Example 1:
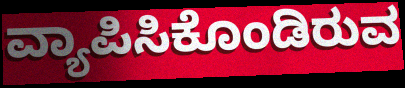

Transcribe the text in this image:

ವ್ಯಾಪಿಸಿಕೊಂಡಿರುವ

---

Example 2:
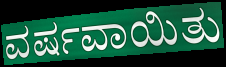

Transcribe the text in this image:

ವರ್ಷವಾಯಿತು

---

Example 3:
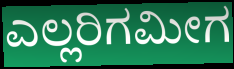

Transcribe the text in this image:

ಎಲ್ಲರಿಗಮೀಗ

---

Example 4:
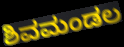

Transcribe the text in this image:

ಶಿವಮಂಡಲ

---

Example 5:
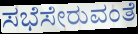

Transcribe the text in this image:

ಸಭೆಸೇರುವಂತೆ